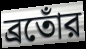
ব্রতোঁর